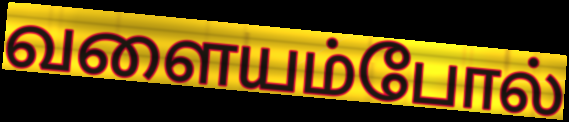
வளையம்போல்